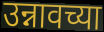
उन्नावच्या